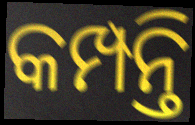
କମ୍ପନ୍ତି